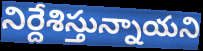
నిర్దేశిస్తున్నాయని